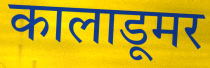
कालाडूमर